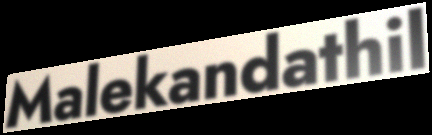
Malekandathil